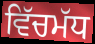
ਵਿੱਚਮੱਧ